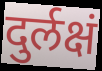
दुर्लक्षं